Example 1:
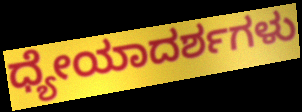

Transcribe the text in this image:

ಧ್ಯೇಯಾದರ್ಶಗಳು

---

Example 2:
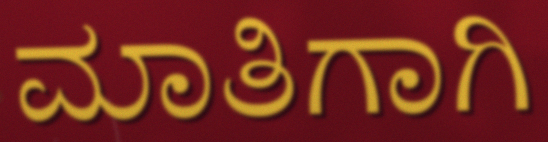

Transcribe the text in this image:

ಮಾತಿಗಾಗಿ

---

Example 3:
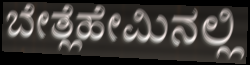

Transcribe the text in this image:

ಬೇತ್ಲೆಹೇಮಿನಲ್ಲಿ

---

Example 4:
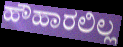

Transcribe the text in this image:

ಹೌಹಾರಲಿಲ್ಲ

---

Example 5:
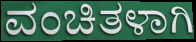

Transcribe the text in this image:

ವಂಚಿತಳಾಗಿ